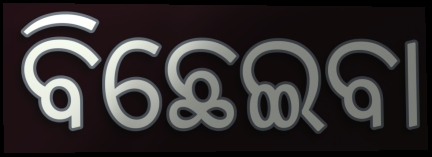
ବିଛେଇବା